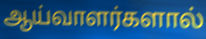
ஆய்வாளர்களால்